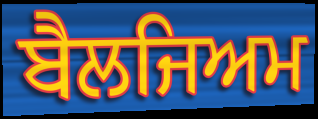
ਬੈਲਜਿਅਮ